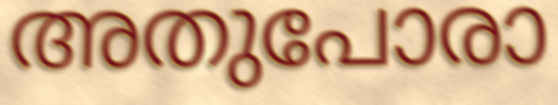
അതുപോരാ